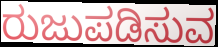
ರುಜುಪಡಿಸುವ